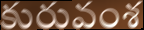
కురువంశ